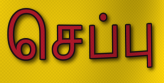
செப்பு